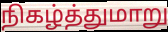
நிகழ்த்துமாறு